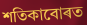
শতিকাবোৰত